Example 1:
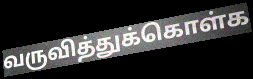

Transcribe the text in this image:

வருவித்துக்கொள்க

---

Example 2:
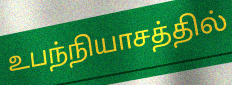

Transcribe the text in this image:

உபந்நியாசத்தில்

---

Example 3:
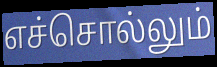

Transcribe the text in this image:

எச்சொல்லும்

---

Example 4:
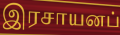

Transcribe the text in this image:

இரசாயனப்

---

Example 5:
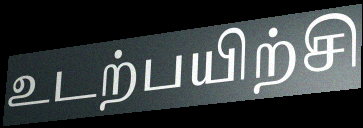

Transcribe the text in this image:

உடற்பயிற்சி